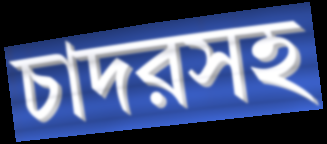
চাদরসহ